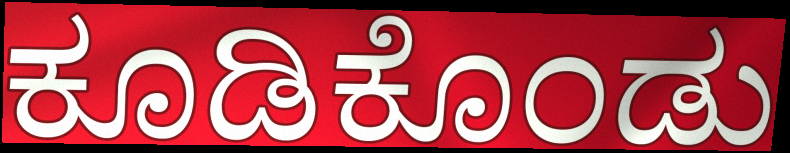
ಕೂಡಿಕೊಂಡು